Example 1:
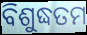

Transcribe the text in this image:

ବିଶୁଦ୍ଧତମ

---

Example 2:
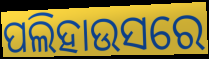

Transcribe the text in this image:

ପଲିହାଉସରେ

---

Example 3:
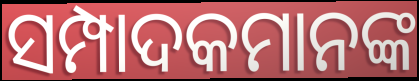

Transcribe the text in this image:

ସମ୍ପାଦକମାନଙ୍କ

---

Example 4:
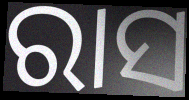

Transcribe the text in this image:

ରାସ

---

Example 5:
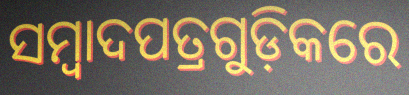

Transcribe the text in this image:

ସମ୍ୱାଦପତ୍ରଗୁଡ଼ିକରେ